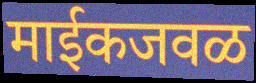
माईकजवळ